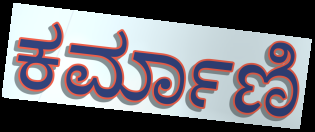
ಕರ್ಮಾಣಿ